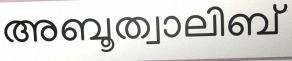
അബൂത്വാലിബ്